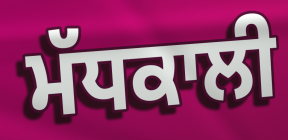
ਮੱਧਕਾਲੀ